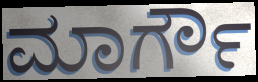
ಮಾರ್ಗೌ